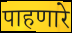
पाहणारे